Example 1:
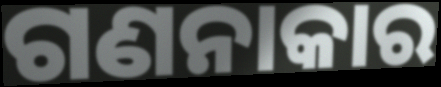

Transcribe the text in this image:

ଗଣନାକାର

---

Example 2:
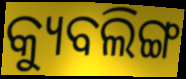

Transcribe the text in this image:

କ୍ୟୁବଲିଙ୍ଗ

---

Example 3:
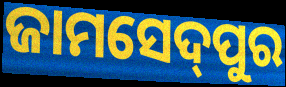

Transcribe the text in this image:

ଜାମସେଦ୍‌ପୁର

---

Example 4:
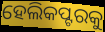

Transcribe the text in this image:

ହେଲିକପ୍ଟରକୁ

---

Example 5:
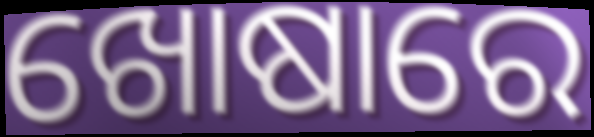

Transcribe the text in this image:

ଖୋଷାରେ